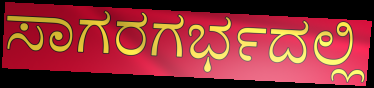
ಸಾಗರಗರ್ಭದಲ್ಲಿ